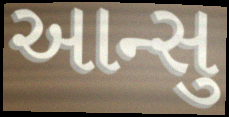
આન્સુ